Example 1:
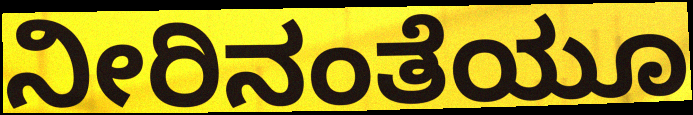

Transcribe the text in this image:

ನೀರಿನಂತೆಯೂ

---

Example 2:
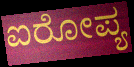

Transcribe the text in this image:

ಐರೋಪ್ಯ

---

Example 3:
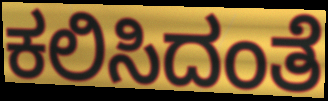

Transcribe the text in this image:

ಕಲಿಸಿದಂತೆ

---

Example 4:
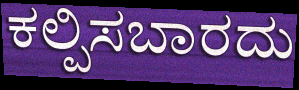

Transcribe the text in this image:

ಕಲ್ಪಿಸಬಾರದು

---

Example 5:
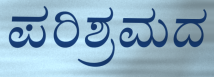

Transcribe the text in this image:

ಪರಿಶ್ರಮದ